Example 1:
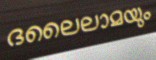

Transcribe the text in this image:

ദലൈലാമയും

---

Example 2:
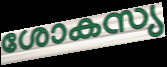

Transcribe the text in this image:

ശോകസ്യ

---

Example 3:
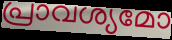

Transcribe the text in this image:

പ്രാവശ്യമോ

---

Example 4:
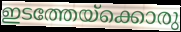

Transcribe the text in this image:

ഇടത്തേയ്ക്കൊരു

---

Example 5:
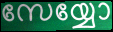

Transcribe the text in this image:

സേയ്യോ